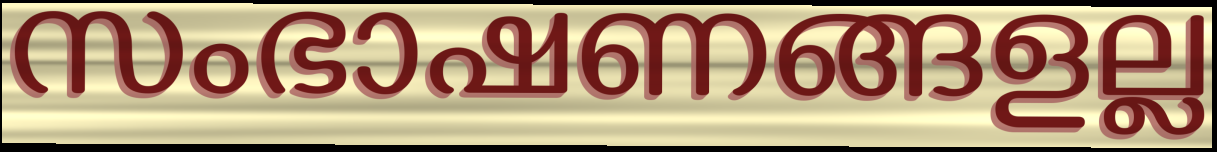
സംഭാഷണങ്ങളല്ല